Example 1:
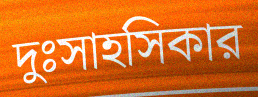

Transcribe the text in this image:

দুঃসাহসিকার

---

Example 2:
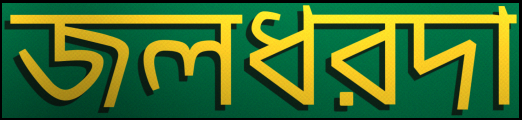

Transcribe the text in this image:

জলধরদা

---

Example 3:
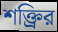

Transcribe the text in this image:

শক্ত্রির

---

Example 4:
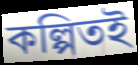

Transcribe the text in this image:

কল্পিতই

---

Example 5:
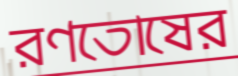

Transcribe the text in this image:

রণতোষের